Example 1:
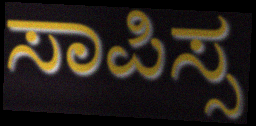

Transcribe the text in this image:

ಸಾಪಿಸ್ಸ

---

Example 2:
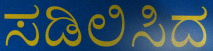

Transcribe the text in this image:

ಸಡಿಲಿಸಿದ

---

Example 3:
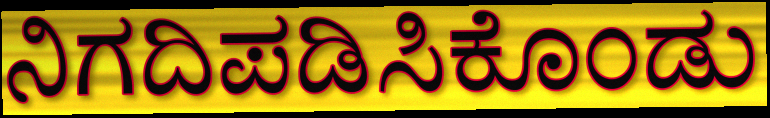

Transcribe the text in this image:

ನಿಗದಿಪಡಿಸಿಕೊಂಡು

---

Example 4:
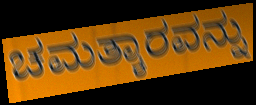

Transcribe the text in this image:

ಚಮತ್ಕಾರವನ್ನು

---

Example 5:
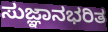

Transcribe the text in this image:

ಸುಜ್ಞಾನಭರಿತ